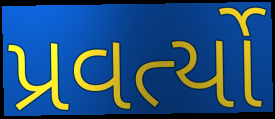
પ્રવર્ત્યો